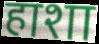
हाशा